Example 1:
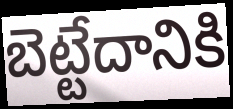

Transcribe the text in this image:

బెట్టేదానికి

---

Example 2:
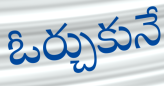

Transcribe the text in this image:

ఓర్చుకునే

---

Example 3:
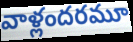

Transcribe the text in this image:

వాళ్లందరమూ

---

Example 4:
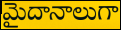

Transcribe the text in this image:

మైదానాలుగా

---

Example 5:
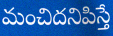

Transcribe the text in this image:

మంచిదనిపిస్తే